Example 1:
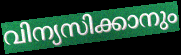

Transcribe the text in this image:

വിന്യസിക്കാനും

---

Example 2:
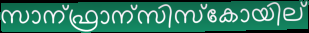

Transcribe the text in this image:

സാന്ഫ്രാന്സിസ്കോയില്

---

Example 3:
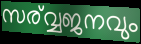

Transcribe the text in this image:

സര്വ്വജനവും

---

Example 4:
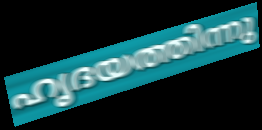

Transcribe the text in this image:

ഹൃദയത്തിന്നു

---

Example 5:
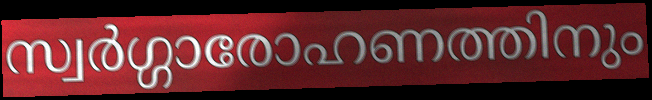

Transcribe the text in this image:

സ്വർഗ്ഗാരോഹണത്തിനും